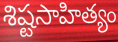
శిష్టసాహిత్యం